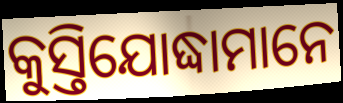
କୁସ୍ତିଯୋଦ୍ଧାମାନେ